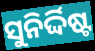
ସୁନିର୍ଦ୍ଦିଷ୍ଟ